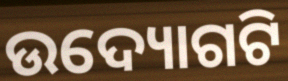
ଉଦ୍ୟୋଗଟି